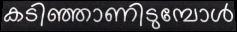
കടിഞ്ഞാണിടുമ്പോൾ